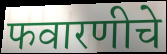
फवारणीचे